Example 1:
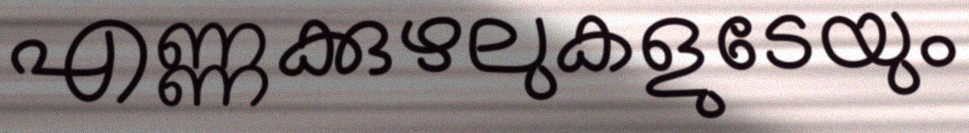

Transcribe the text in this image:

എണ്ണക്കുഴലുകളുടേയും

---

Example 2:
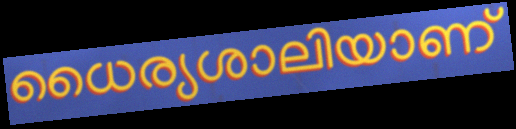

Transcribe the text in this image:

ധൈര്യശാലിയാണ്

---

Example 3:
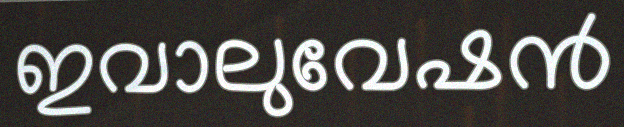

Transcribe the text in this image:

ഇവാലുവേഷൻ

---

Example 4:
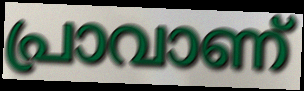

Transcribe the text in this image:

പ്രാവാണ്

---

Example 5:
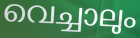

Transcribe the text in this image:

വെച്ചാലും